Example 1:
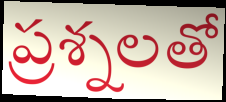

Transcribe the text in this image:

ప్రశ్నలతో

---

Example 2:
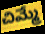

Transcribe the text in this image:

చిమ్మే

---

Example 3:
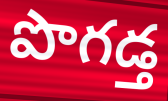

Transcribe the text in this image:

పొగడ్త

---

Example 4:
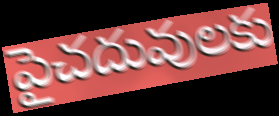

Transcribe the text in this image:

పైచదువులకు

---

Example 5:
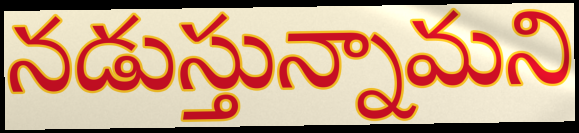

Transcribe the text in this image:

నడుస్తున్నామని